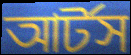
আর্টস